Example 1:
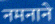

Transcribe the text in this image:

नमनाने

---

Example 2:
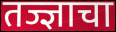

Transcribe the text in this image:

तज्ज्ञाचा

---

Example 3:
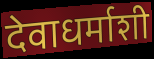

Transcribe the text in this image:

देवाधर्माशी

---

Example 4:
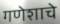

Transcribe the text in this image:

गणेशाचे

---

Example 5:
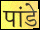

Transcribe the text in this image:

पांडे